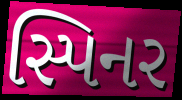
સ્પિનર